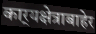
कार्यक्षेत्राबाहेर